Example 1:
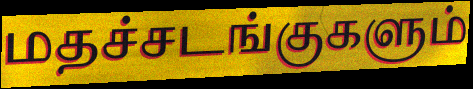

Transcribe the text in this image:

மதச்சடங்குகளும்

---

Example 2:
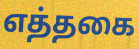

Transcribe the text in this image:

எத்தகை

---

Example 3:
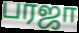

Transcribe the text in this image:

பரஜா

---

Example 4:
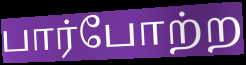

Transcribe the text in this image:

பார்போற்ற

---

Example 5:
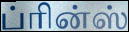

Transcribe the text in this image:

ப்ரின்ஸ்